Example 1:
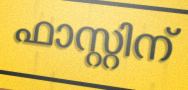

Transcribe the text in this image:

ഫാസ്റ്റിന്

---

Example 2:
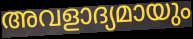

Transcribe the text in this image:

അവളാദ്യമായും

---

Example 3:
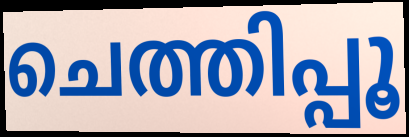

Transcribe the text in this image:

ചെത്തിപ്പൂ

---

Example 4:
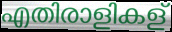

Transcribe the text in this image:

എതിരാളികള്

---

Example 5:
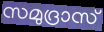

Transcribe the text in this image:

സമുദ്രാസ്